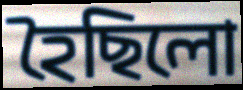
হৈছিলো